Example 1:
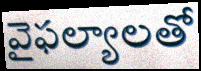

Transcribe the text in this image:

వైఫల్యాలతో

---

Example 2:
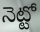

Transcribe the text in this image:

నెట్టో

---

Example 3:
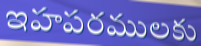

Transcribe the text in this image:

ఇహపరములకు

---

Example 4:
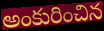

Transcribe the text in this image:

అంకురించిన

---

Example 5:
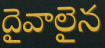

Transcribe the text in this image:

దైవాలైన